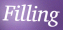
Filling